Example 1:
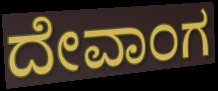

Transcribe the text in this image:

ದೇವಾಂಗ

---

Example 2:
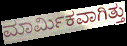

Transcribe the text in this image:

ಮಾರ್ಮಿಕವಾಗಿತ್ತು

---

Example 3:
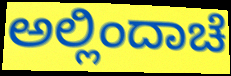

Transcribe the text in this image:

ಅಲ್ಲಿಂದಾಚೆ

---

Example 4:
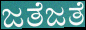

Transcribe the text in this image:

ಜತೆಜತೆ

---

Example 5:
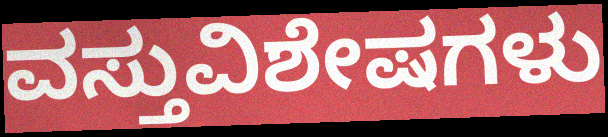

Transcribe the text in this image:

ವಸ್ತುವಿಶೇಷಗಳು